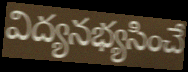
విద్యనభ్యసించే